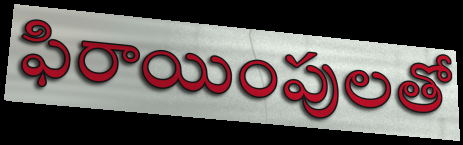
ఫిరాయింపులతో